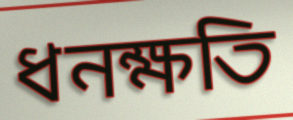
ধনক্ষতি